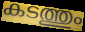
കടത്തും